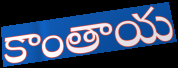
కాంతాయ